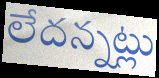
లేదన్నట్లు